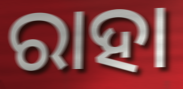
ରାହା